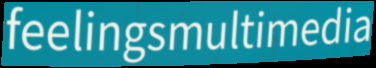
feelingsmultimedia